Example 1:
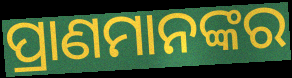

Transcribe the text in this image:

ପ୍ରାଣମାନଙ୍କର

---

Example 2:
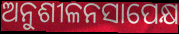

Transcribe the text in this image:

ଅନୁଶୀଳନସାପେକ୍ଷ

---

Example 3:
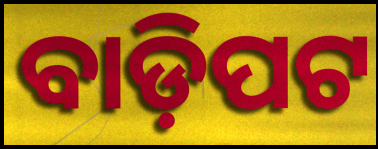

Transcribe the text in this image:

ବାଡ଼ିପଟ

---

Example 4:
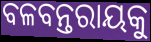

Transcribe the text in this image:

ବଳବନ୍ତରାୟକୁ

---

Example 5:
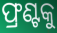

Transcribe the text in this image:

ଫ୍ରଣ୍ଟକୁ